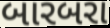
બારબરા